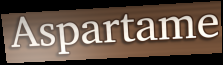
Aspartame